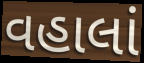
વહાલાં